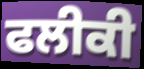
ਫਲੀਕੀ